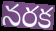
నరక